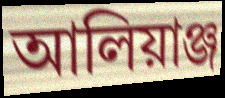
আলিয়াঞ্জ